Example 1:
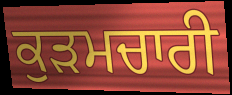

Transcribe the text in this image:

ਕੁੜਮਚਾਰੀ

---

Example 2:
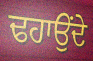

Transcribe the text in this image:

ਢਹਾਉਂਦੇ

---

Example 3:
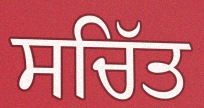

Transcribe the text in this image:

ਸਚਿੱਤ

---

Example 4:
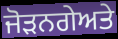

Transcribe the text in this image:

ਜੋੜਨਗੇਅਤੇ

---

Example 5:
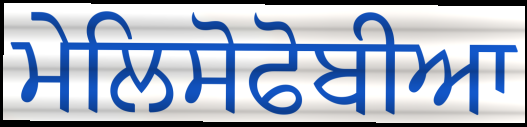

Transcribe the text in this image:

ਮੇਲਿਸੋਫੋਬੀਆ